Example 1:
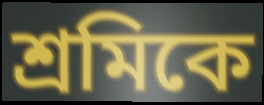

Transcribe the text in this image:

শ্ৰমিকে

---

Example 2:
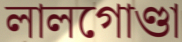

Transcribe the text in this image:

লালগোণ্ডা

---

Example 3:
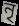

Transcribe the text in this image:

নৃ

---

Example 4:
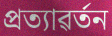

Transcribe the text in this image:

প্ৰত্যাৱৰ্তন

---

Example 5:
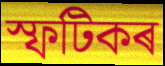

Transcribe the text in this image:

স্ফটিকৰ